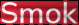
Smok